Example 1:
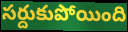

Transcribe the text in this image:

సర్దుకుపోయింది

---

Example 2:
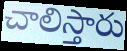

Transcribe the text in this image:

చాలిస్తారు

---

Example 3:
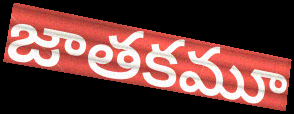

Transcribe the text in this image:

జాతకమూ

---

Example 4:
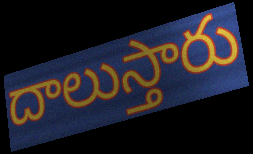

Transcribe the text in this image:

దాలుస్తారు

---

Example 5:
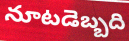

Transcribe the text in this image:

నూటడెబ్బది